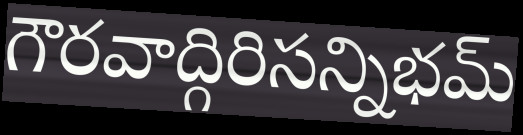
గౌరవాద్గిరిసన్నిభమ్